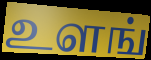
உளங்